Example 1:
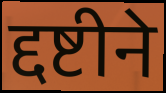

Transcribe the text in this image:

द्दष्टीने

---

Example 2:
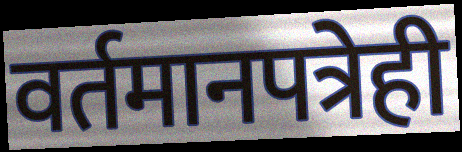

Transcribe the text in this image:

वर्तमानपत्रेही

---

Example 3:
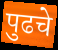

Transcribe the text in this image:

पुढचे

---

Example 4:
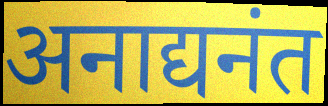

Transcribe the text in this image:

अनाद्यनंत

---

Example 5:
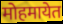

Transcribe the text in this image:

मोहमायेत